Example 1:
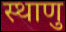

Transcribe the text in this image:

स्थाणु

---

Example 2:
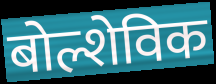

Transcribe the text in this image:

बोल्शेविक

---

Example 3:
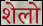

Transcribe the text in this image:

शेलो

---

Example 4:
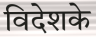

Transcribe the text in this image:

विदेशके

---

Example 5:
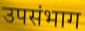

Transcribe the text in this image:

उपसंभाग